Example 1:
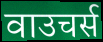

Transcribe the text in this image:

वाउचर्स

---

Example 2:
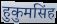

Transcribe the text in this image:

हुकुमसिंह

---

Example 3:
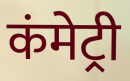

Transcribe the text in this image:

कंमेट्री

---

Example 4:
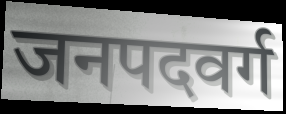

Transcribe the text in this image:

जनपदवर्ग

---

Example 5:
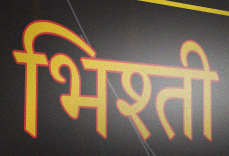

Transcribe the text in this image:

भिश्ती